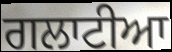
ਗਲਾਟੀਆ